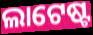
ଲାଟେଷ୍ଟ